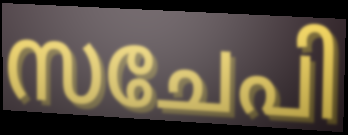
സചേപി